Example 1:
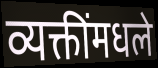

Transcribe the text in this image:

व्यक्तींमधले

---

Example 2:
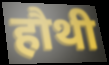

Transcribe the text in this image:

हौथी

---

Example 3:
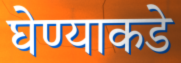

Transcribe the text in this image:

घेण्याकडे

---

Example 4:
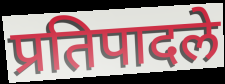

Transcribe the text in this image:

प्रतिपादले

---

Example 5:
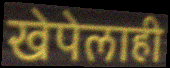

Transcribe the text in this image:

खेपेलाही